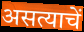
असत्याचें